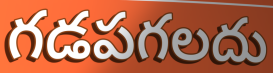
గడపగలదు